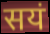
सयं